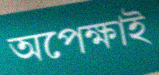
অপেক্ষাই